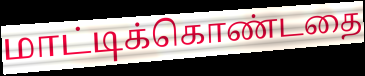
மாட்டிக்கொண்டதை